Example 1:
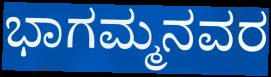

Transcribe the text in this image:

ಭಾಗಮ್ಮನವರ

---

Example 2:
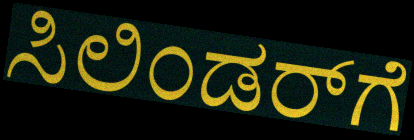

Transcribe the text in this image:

ಸಿಲಿಂಡರ್‌ಗೆ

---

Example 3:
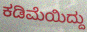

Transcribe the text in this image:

ಕಡಿಮೆಯಿದ್ದು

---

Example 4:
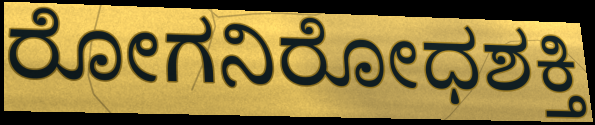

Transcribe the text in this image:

ರೋಗನಿರೋಧಶಕ್ತಿ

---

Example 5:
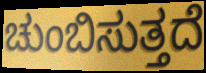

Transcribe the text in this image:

ಚುಂಬಿಸುತ್ತದೆ